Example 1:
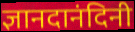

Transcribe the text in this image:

ज्ञानदानंदिनी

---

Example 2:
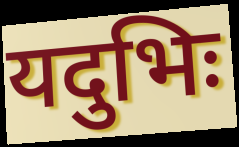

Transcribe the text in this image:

यदुभिः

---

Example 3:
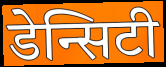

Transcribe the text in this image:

डेन्सिटी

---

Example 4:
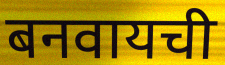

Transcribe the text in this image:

बनवायची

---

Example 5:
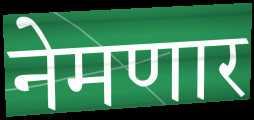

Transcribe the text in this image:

नेमणार